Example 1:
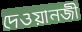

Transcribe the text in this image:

দেওয়ানজী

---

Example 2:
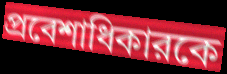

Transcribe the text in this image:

প্রবেশাধিকারকে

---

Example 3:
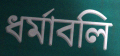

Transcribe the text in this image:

ধর্মাবলি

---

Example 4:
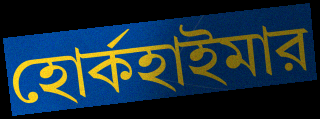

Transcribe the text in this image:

হোর্কহাইমার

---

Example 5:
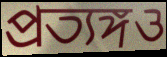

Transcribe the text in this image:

প্রত্যঙ্গও